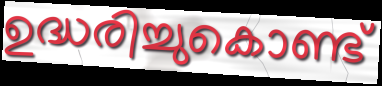
ഉദ്ധരിച്ചുകൊണ്ട്